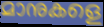
മാനുകളെ